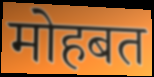
मोहबत